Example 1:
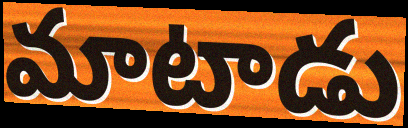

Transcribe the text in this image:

మాటాడు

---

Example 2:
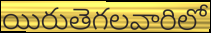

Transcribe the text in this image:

యిరుతెగలవారిలో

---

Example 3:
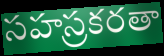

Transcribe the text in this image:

సహస్రకరతా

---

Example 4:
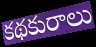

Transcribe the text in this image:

కథకురాలు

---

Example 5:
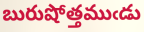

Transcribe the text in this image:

బురుషోత్తముఁడు